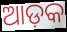
ଆଡ଼କ